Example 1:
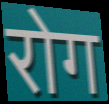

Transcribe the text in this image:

रोग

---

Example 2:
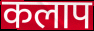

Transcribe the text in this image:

कलाप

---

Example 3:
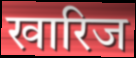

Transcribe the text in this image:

खारिज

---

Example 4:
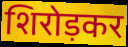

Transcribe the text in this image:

शिरोड़कर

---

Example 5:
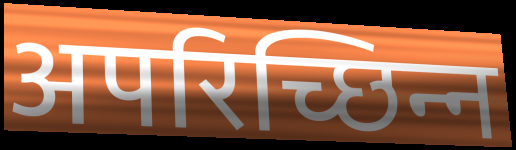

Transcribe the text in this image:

अपरिच्छिन्न